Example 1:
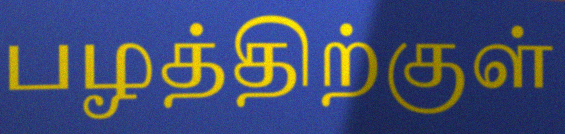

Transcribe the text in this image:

பழத்திற்குள்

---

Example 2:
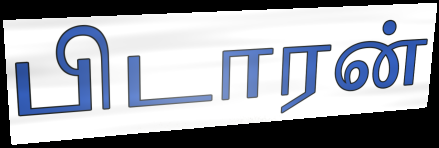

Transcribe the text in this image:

பிடாரன்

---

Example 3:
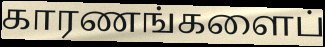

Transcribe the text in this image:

காரணங்களைப்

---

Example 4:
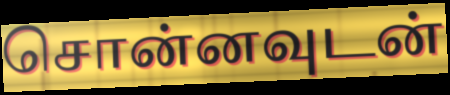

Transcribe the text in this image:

சொன்னவுடன்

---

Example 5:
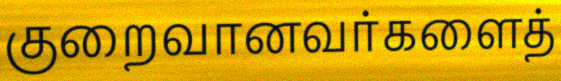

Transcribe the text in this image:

குறைவானவர்களைத்